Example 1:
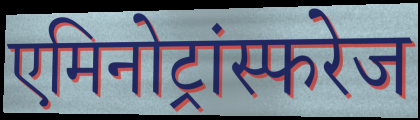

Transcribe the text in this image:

एमिनोट्रांस्फरेज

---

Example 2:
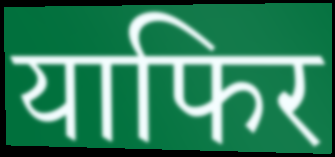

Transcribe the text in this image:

याफिर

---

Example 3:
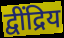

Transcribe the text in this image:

द्वींद्रिय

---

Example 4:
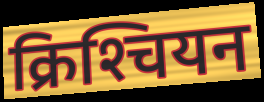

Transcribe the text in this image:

क्रिश्चियन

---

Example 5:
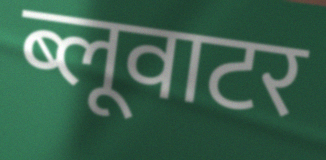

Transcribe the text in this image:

ब्लूवाटर